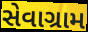
સેવાગ્રામ